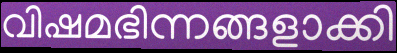
വിഷമഭിന്നങ്ങളാക്കി